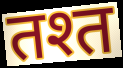
तश्त